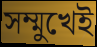
সম্মুখেই